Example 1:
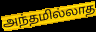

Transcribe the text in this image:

அந்தமில்லாத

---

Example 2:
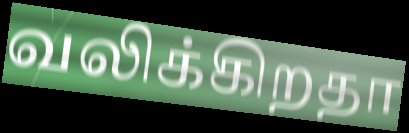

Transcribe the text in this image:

வலிக்கிறதா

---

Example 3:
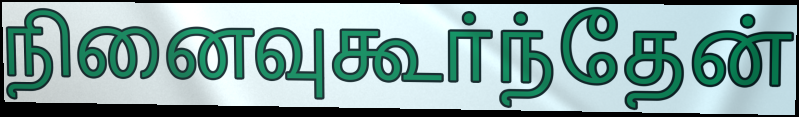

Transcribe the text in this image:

நினைவுகூர்ந்தேன்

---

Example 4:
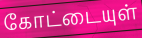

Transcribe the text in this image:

கோட்டையுள்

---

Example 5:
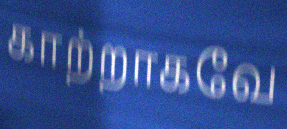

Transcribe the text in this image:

காற்றாகவே